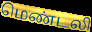
மெண்டலி